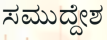
ಸಮುದ್ದೇಶ